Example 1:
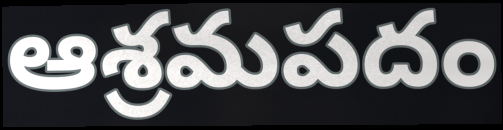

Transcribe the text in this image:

ఆశ్రమపదం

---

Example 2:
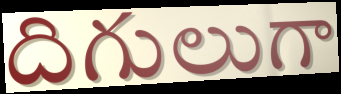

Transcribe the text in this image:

దిగులుగా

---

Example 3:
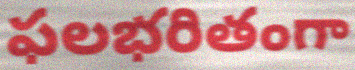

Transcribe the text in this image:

ఫలభరితంగా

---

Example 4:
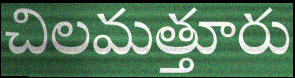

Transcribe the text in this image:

చిలమత్తూరు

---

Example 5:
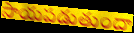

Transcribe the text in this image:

సాయపడుతుందా